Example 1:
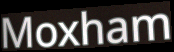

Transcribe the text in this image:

Moxham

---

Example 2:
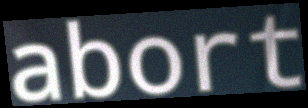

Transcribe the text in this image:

abort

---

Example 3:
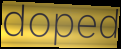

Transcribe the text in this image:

doped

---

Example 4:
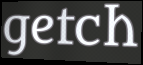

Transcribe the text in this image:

getch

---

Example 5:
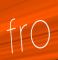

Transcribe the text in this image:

fro